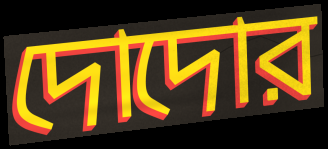
দোদোর